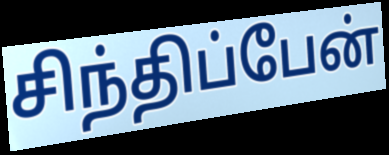
சிந்திப்பேன்